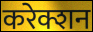
करेक्शन